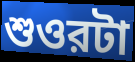
শুওরটা